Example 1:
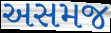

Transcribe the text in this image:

અસમજ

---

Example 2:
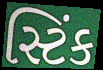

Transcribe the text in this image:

સ્ટિંક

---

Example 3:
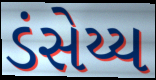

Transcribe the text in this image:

ડંસેય્ય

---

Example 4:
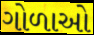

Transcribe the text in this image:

ગોળાઓ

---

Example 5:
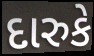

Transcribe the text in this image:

દારુકે